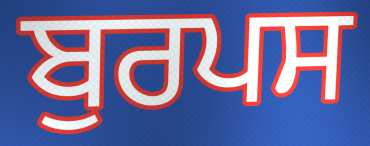
ਬੁਰਪਸ